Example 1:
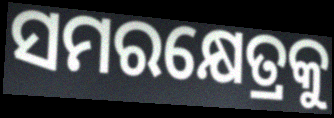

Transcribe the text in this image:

ସମରକ୍ଷେତ୍ରକୁ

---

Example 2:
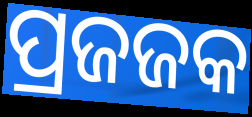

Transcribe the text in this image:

ପ୍ରଜଜକ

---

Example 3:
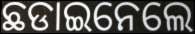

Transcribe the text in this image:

ଛଡାଇନେଲେ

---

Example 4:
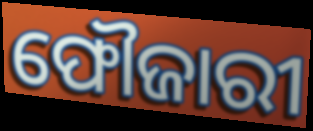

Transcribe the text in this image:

ଫୌଜାରୀ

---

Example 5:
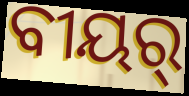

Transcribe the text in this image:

ବୀୟର୍